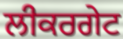
ਲੀਕਰਗੇਟ